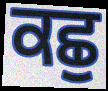
ਕਛੁ